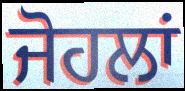
ਜੋਹਲਾਂ